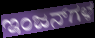
ಇಂಜನ್‌ಗಳ